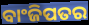
ବାଂଜିପତର